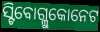
ସ୍ଟିବୋଗ୍ଲୁକୋନେଟ